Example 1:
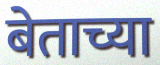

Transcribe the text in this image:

बेताच्या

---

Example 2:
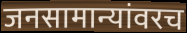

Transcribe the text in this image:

जनसामान्यांवरच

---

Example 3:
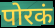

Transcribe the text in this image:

पोरकं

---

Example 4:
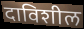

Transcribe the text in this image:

दाविशील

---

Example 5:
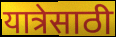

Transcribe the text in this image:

यात्रेसाठी